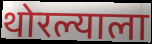
थोरल्याला